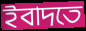
ইবাদতে